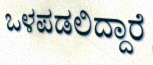
ಒಳಪಡಲಿದ್ದಾರೆ